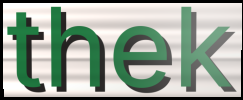
thek